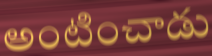
అంటించాడు